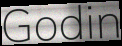
Godin